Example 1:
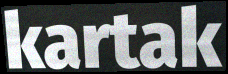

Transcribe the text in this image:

kartak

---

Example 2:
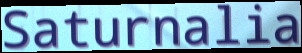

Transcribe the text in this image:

Saturnalia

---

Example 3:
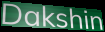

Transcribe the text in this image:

Dakshin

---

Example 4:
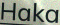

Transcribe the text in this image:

Haka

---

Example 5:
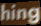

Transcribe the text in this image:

hing